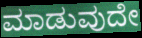
ಮಾಡುವುದೇ